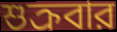
শুক্রবার